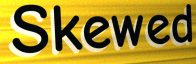
Skewed